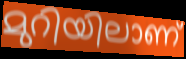
മുറിയിലാണ്